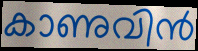
കാണുവിൻ